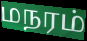
மநரம்